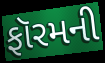
ફૉરમની